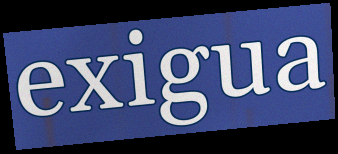
exigua